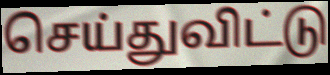
செய்துவிட்டு